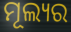
ମୂଲ୍ୟର